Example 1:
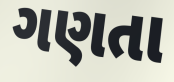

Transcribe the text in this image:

ગણતા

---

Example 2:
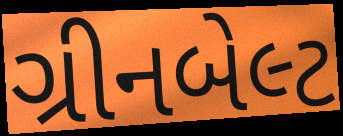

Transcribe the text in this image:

ગ્રીનબેલ્ટ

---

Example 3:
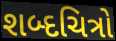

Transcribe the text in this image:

શબ્દચિત્રો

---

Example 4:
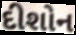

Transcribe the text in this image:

દીશોન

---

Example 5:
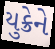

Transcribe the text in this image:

યુક્રેને